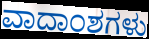
ವಾದಾಂಶಗಳು